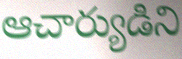
ఆచార్యుడిని